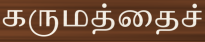
கருமத்தைச்